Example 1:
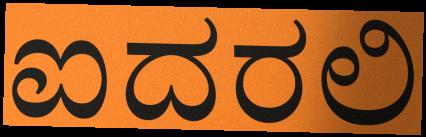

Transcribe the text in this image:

ಐದರಲಿ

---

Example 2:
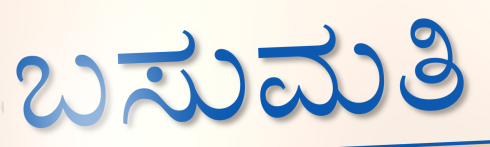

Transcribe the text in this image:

ಬಸುಮತಿ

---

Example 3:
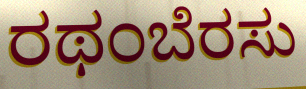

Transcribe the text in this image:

ರಥಂಬೆರಸು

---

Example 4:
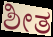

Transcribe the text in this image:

ಶೀತ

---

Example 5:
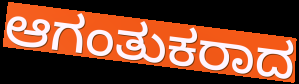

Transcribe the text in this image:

ಆಗಂತುಕರಾದ